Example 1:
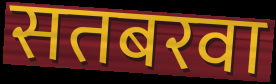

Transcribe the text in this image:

सतबरवा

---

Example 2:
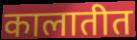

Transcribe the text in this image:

कालातीत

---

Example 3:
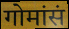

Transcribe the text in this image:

गोमांसं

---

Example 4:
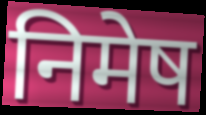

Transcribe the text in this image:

निमेष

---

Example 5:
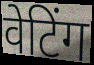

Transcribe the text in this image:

वेटिंग